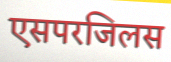
एसपरजिलस